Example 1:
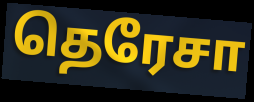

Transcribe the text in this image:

தெரேசா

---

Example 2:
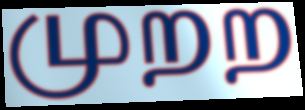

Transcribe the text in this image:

முறற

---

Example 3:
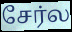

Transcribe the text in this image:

சேர்ல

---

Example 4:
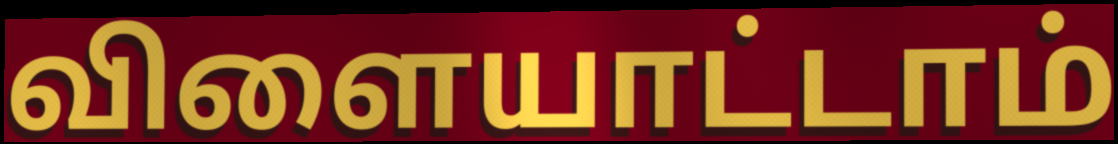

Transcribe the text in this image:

விளையாட்டாம்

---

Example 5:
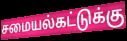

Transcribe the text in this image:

சமையல்கட்டுக்கு